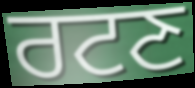
ਰਟਣ